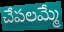
చేపలమ్మే